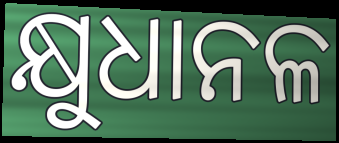
କ୍ଷୁଧାନଳ